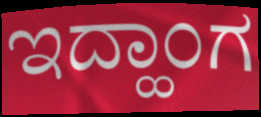
ಇದ್ಹಾಂಗ